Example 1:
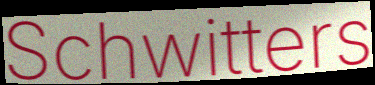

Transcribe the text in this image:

Schwitters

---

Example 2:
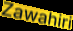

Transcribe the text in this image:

Zawahiri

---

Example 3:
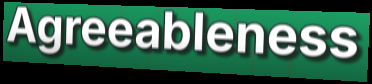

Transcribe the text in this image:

Agreeableness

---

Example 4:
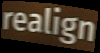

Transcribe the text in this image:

realign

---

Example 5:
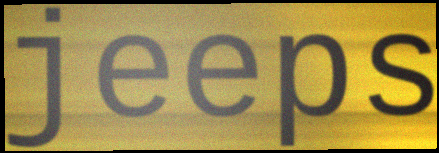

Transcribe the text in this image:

jeeps